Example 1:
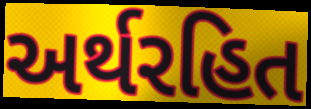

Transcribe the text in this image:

અર્થરહિત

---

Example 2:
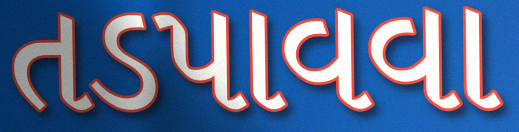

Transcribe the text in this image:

તડપાવવા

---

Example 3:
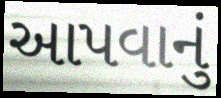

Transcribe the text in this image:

આપવાનું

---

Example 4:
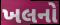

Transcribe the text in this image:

ખલનો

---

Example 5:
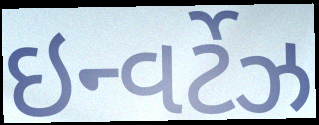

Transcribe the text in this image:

ઇન્વર્ટેઝ